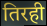
तिरही